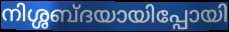
നിശ്ശബ്ദയായിപ്പോയി